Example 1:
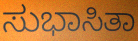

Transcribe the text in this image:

ಸುಭಾಸಿತಾ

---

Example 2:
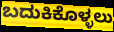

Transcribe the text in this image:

ಬದುಕಿಕೊಳ್ಳಲು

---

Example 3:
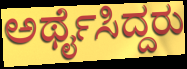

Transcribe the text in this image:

ಅರ್ಥೈಸಿದ್ದರು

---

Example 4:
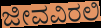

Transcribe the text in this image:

ಜೀವವಿರಲಿ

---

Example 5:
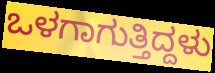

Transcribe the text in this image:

ಒಳಗಾಗುತ್ತಿದ್ದಳು